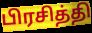
பிரசித்தி